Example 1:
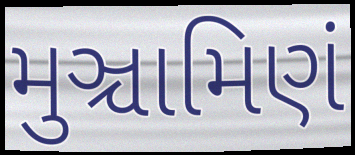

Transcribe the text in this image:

મુઞ્ચામિણં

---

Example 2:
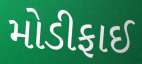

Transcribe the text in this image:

મોડીફાઈ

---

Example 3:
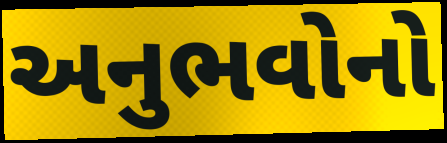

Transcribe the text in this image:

અનુભવોનો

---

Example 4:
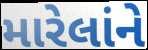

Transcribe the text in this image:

મારેલાંને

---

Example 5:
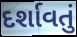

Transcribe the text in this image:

દર્શાવતું